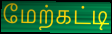
மேற்கட்டி